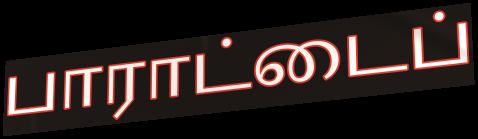
பாராட்டைப்